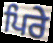
ਪਿਰੇ